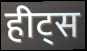
हीट्स